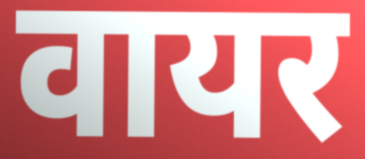
वायर